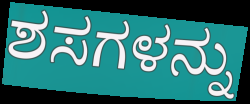
ಶಸಗಳನ್ನು